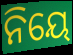
ନିୟେ